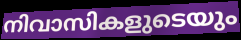
നിവാസികളുടെയും